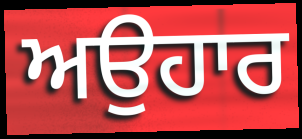
ਅਉਹਾਰ